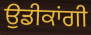
ਉਡੀਕਾਂਗੀ